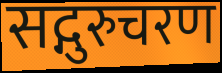
सद्गुरुचरण